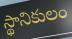
స్థానికులం